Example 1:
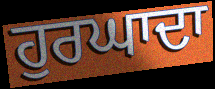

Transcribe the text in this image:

ਹੁਰਘਾਦਾ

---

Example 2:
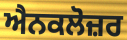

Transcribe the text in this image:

ਐਨਕਲੋਜ਼ਰ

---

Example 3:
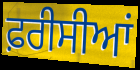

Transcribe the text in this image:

ਫ਼ਰੀਸੀਆਂ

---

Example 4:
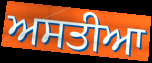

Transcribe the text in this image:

ਅਸਤੀਆ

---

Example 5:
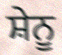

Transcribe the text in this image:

ਸ਼ੇਨੂ